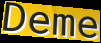
Deme